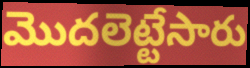
మొదలెట్టేసారు